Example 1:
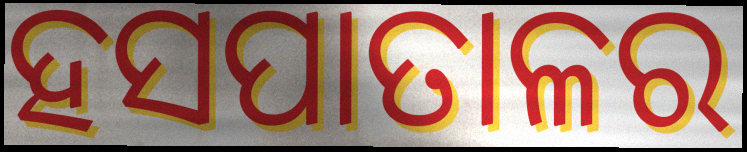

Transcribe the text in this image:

ହସପାତାଳର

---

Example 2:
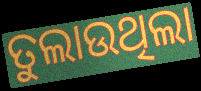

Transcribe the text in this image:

ତୁଲାଉଥିଲା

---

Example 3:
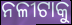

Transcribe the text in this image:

ନଳୀଟାକୁ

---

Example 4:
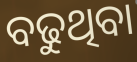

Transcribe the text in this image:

ବଢୁଥିବା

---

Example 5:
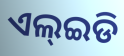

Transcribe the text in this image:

ଏଲ୍ଇଡି